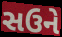
સઉને